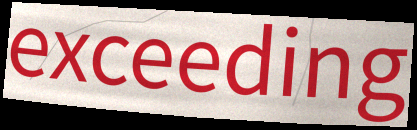
exceeding